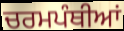
ਚਰਮਪੰਥੀਆਂ